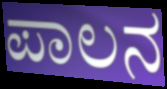
ಪಾಲನ